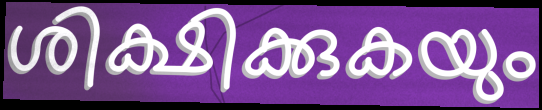
ശിക്ഷിക്കുകയും